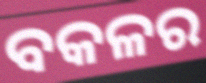
ବକଳର